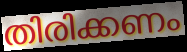
തിരിക്കണം